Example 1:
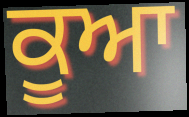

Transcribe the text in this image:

ਕੂਆ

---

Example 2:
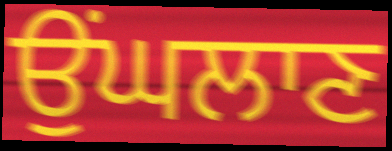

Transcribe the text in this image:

ਉਂਘਲਾਣ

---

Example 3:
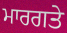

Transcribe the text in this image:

ਮਾਰਗਤੇ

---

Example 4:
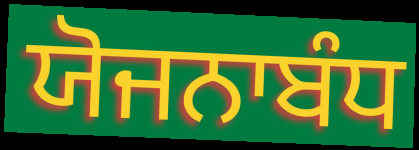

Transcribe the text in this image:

ਯੋਜਨਾਬੰਧ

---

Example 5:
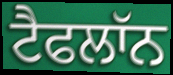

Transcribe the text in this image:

ਟੈਫਲਾੱਨ